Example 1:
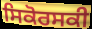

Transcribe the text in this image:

ਸਿਕੋਰਸਕੀ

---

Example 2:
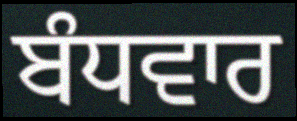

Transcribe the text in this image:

ਬੰਧਵਾਰ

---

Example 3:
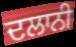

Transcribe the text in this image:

ਦਲਾਨੀ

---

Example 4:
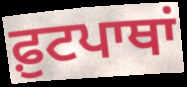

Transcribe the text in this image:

ਫ਼ੁਟਪਾਥਾਂ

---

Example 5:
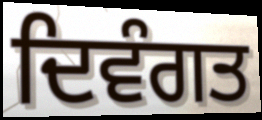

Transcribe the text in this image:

ਦਿਵੰਗਤ